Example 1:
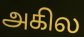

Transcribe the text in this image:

அகில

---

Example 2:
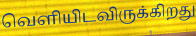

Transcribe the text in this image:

வெளியிடவிருக்கிறது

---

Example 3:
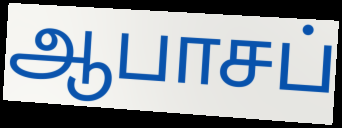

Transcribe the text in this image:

ஆபாசப்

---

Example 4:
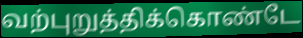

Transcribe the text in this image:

வற்புறுத்திக்கொண்டே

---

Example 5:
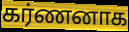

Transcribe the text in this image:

கர்ணனாக